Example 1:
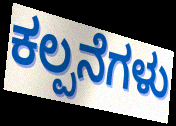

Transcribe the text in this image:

ಕಲ್ಪನೆಗಳು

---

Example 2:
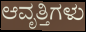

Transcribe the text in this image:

ಆವೃತ್ತಿಗಳು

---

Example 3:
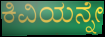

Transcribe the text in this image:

ಕಿವಿಯನ್ನೇ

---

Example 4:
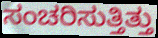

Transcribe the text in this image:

ಸಂಚರಿಸುತ್ತಿತ್ತು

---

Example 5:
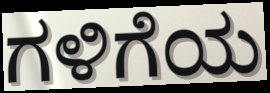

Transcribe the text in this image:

ಗಳಿಗೆಯ